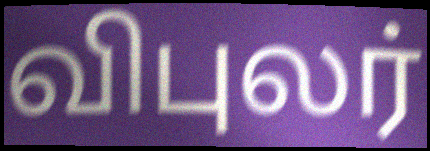
விபுலர்